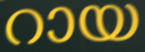
റായ